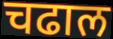
चढाल